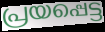
പ്രയപ്പെട്ട